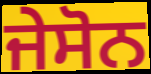
ਜੇਸੋਨ